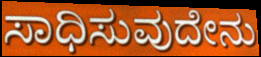
ಸಾಧಿಸುವುದೇನು